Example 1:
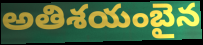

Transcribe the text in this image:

అతిశయంబైన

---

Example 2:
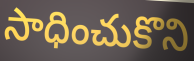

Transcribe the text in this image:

సాధించుకొని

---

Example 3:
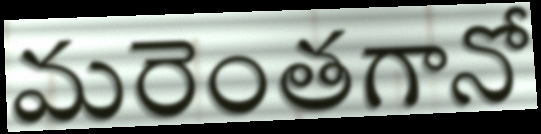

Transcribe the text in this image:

మరెంతగానో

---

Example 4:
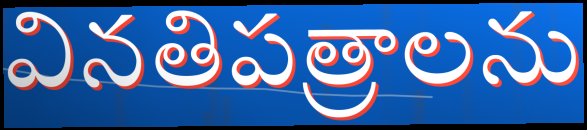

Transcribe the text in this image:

వినతిపత్రాలను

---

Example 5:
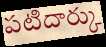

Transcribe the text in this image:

పటిదార్కు